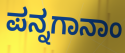
ಪನ್ನಗಾನಾಂ